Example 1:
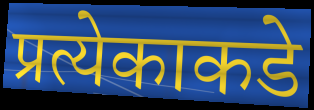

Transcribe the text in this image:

प्रत्येकाकडे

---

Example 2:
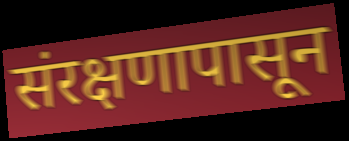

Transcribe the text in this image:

संरक्षणापासून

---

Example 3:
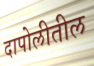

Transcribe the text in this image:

दापोलीतील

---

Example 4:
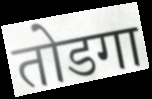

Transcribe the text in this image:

तोडगा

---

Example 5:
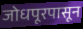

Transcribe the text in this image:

जोधपूरपासून